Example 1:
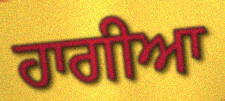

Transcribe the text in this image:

ਹਾਗੀਆ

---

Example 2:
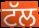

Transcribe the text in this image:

ਟੱਲ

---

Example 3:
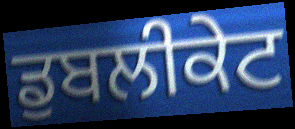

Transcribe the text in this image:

ਡੁਬਲੀਕੇਟ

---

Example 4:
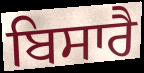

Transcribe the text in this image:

ਬਿਸਾਰੈ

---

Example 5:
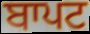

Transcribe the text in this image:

ਬਾਪਟ